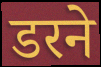
डरने